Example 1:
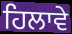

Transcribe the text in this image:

ਹਿਲਾਵੇ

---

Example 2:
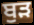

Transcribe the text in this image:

ਬੁੜ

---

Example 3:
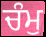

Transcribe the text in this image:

ਚੰਮੁ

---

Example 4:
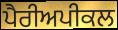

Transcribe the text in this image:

ਪੈਰੀਅਪੀਕਲ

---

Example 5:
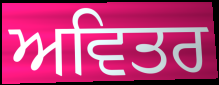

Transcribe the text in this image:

ਅਵਿਤਰ